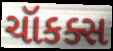
ચૉકક્સ